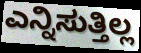
ಎನ್ನಿಸುತ್ತಿಲ್ಲ